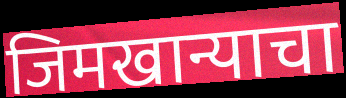
जिमखान्याचा